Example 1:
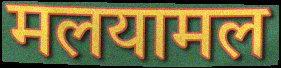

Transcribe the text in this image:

मलयामल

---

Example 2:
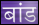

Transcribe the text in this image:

बांड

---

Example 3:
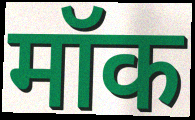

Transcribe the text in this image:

मॉक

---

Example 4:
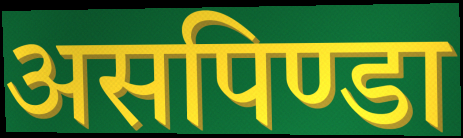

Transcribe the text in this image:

असपिण्डा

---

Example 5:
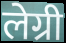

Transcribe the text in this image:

लेग्री